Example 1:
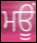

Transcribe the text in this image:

ਮਊਂ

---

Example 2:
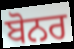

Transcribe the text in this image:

ਬੋਨਰ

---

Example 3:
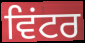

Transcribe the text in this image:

ਵਿਂਟਰ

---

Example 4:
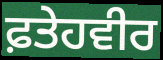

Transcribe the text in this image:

ਫ਼ਤੇਹਵੀਰ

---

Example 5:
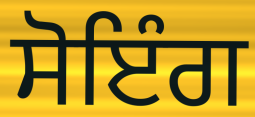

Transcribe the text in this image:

ਸੋਇੰਗ